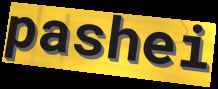
pashei